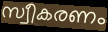
സ്വീകരണം